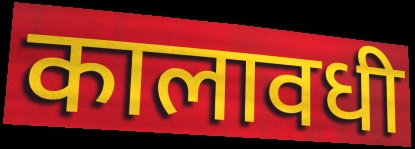
कालावधी